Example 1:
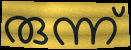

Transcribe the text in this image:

രുന്ന്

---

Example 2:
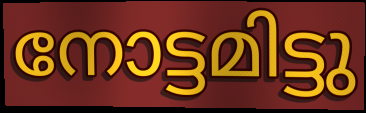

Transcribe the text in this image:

നോട്ടമിട്ടു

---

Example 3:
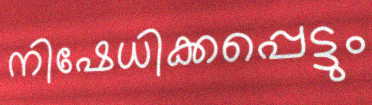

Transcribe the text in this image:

നിഷേധിക്കപ്പെട്ടും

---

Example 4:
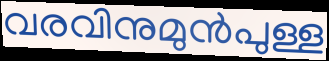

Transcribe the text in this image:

വരവിനുമുൻപുള്ള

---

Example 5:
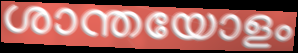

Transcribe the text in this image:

ശാന്തയോളം